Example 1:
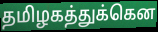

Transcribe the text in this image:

தமிழகத்துக்கென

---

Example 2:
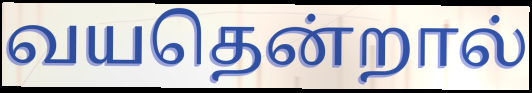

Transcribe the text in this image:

வயதென்றால்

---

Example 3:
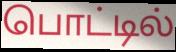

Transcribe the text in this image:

பொட்டில்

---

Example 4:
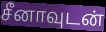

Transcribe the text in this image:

சீனாவுடன்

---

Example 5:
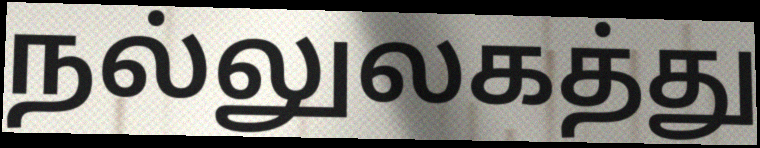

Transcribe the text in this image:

நல்லுலகத்து